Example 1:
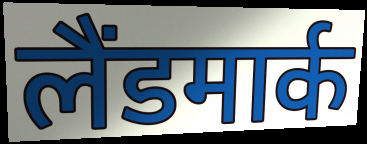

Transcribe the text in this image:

लैंडमार्क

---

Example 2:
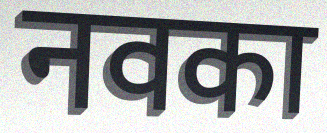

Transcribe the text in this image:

नवका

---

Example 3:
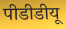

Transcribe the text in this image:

पीडीडीयू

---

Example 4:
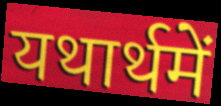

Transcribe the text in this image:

यथार्थमें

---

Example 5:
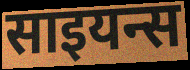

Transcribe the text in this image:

साइयन्स